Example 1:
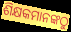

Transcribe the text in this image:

ଶିକ୍ଷକମାନଙ୍କଠୁ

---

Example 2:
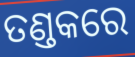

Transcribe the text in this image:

ତଣ୍ଡକରେ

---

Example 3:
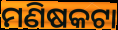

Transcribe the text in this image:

ମଣିଷକଟା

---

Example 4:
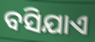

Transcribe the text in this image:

ବସିଯାଏ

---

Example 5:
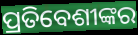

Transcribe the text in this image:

ପ୍ରତିବେଶୀଙ୍କର